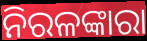
ନିରଳଙ୍କାରା